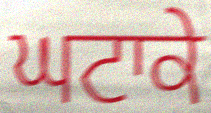
ਘਟਾਕੇ